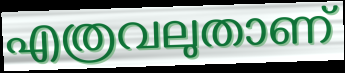
എത്രവലുതാണ്